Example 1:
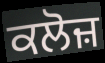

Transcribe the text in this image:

ਕਲੋਜ਼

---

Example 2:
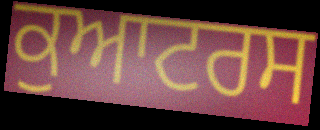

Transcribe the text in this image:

ਕੁਆਟਰਸ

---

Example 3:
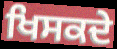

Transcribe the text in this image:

ਖਿਸਕਦੇ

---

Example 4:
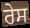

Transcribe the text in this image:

ਰੇਸ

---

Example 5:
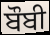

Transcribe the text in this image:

ਬੌਬੀ